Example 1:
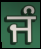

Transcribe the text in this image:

ਜੰ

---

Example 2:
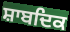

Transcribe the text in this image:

ਸ਼ਾਬਦਿਕ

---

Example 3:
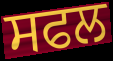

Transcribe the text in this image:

ਸਫਲ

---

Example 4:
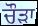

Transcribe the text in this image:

ਚੌੜਾ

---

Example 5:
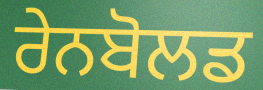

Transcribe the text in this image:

ਰੇਨਬੋਲਡ